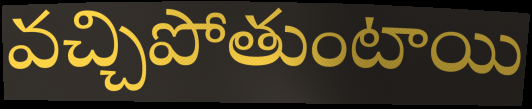
వచ్చిపోతుంటాయి